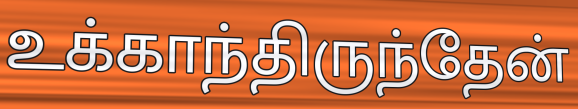
உக்காந்திருந்தேன்